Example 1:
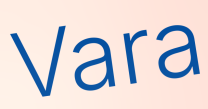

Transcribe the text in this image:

Vara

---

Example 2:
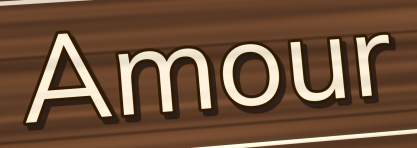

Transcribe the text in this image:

Amour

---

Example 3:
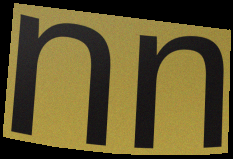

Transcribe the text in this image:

nn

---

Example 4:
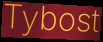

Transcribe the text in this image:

Tybost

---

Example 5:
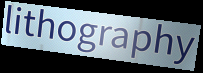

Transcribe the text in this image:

lithography